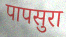
पापसुरा